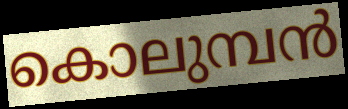
കൊലുമ്പൻ